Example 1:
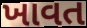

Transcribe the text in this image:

ખાવત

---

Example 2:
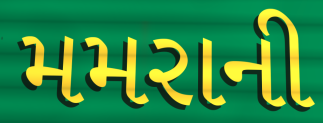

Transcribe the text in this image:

મમરાની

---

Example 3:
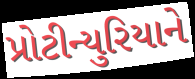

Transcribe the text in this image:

પ્રોટીન્યુરિયાને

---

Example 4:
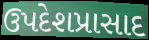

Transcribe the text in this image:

ઉપદેશપ્રાસાદ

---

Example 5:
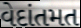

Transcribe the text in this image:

વેદાંતમત